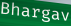
Bhargav